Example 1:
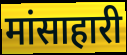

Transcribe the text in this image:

मांसाहारी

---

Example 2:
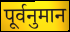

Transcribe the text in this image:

पूर्वनुमान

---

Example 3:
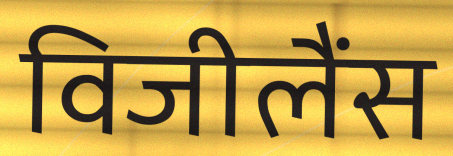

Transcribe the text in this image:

विजीलैंस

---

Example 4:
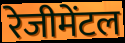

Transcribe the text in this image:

रेजीमेंटल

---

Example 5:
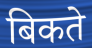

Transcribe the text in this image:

बिकते